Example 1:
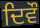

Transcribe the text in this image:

ਦਿਵੌ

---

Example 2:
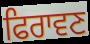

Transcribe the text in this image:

ਫਿਰਾਵਣ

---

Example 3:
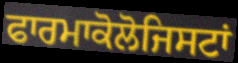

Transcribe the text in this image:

ਫਾਰਮਾਕੋਲੋਜਿਸਟਾਂ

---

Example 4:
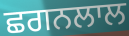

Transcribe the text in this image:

ਛਗਨਲਾਲ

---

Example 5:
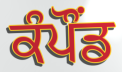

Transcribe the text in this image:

ਕੰਪੌਂਡ